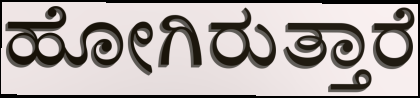
ಹೋಗಿರುತ್ತಾರೆ